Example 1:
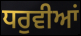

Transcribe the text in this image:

ਧਰੁਵੀਆਂ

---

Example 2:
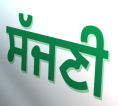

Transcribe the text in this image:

ਸੱਜਣੀ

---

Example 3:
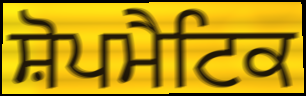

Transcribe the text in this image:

ਸ਼ੋਪਮੈਟਿਕ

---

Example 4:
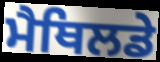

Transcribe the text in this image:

ਮੈਥਿਲਡੇ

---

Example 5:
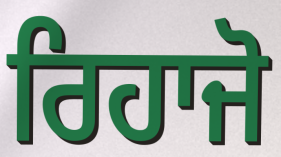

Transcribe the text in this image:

ਰਿਹਾਜੋ